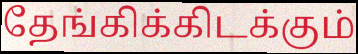
தேங்கிக்கிடக்கும்